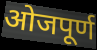
ओजपूर्ण